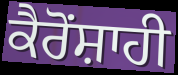
ਕੈਰੋਂਸ਼ਾਹੀ